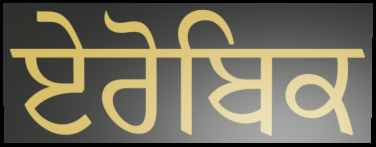
ਏਰੋਬਿਕ